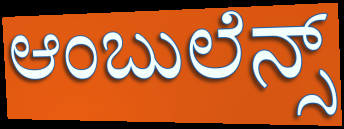
ಆಂಬುಲೆನ್ಸ್